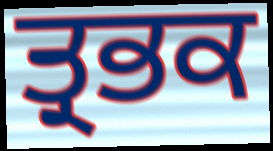
ਤ੍ਰਭਕ